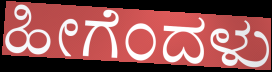
ಹೀಗೆಂದಳು